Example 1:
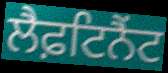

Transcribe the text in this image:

ਲੈਫ਼ਟਿਨੈਂਟ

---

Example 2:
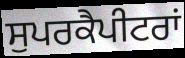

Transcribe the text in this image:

ਸੁਪਰਕੈਪੀਟਰਾਂ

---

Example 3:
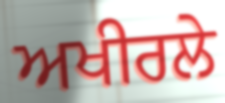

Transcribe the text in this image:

ਅਖੀਰਲੇ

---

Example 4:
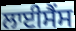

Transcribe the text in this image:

ਲਾਈਸੈਂਸ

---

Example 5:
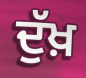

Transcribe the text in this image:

ਦੁੱਖ਼